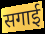
सगाई